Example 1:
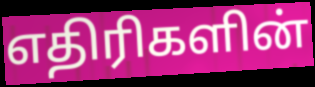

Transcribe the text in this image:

எதிரிகளின்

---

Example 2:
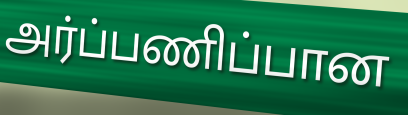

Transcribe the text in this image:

அர்ப்பணிப்பான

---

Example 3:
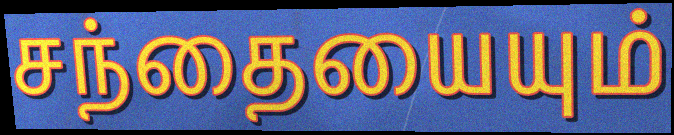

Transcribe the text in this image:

சந்தையையும்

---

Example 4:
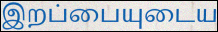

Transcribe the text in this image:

இறப்பையுடைய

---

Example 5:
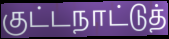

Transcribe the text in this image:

குட்டநாட்டுத்